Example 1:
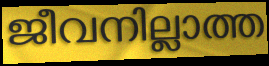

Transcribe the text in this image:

ജീവനില്ലാത്ത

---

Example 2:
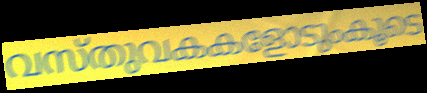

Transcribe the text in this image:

വസ്തുവകകളോടുംകൂടെ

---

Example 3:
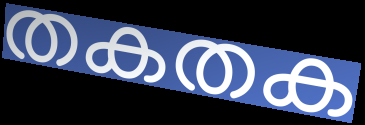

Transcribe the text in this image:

തകതക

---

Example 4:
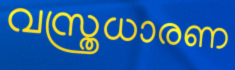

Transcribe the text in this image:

വസ്ത്രധാരണ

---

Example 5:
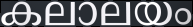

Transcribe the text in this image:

കലാലയം